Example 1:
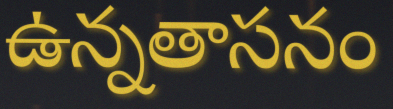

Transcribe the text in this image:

ఉన్నతాసనం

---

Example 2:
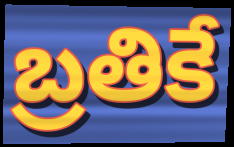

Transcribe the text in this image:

బ్రతికే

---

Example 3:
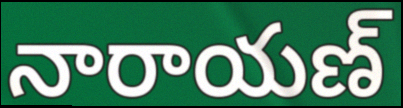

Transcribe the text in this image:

నారాయణ్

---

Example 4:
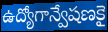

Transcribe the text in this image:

ఉద్యోగాన్వేషణకై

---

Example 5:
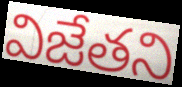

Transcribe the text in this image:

విజేతని